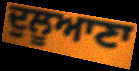
ਦੁਲੂਆਣਾ